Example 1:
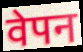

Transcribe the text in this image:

वेपन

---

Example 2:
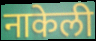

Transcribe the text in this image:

नाकेली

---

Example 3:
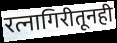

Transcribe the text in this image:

रत्नागिरीतूनही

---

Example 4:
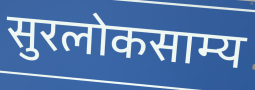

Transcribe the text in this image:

सुरलोकसाम्य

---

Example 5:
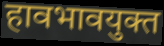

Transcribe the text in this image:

हावभावयुक्त